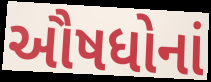
ઔષધોનાં